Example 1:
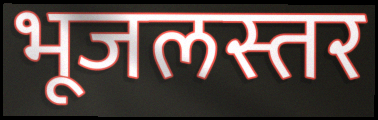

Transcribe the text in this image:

भूजलस्तर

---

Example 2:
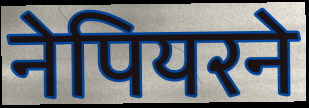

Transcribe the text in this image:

नेपियरने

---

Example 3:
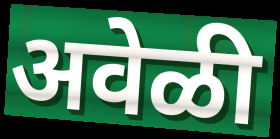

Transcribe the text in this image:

अवेळी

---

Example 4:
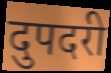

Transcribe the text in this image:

दुपदरी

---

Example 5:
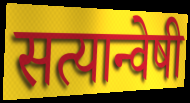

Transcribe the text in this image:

सत्यान्वेषी